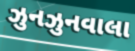
ઝુનઝુનવાલા